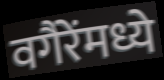
वगैरेंमध्ये